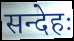
सन्देहः